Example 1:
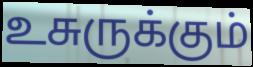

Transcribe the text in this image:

உசுருக்கும்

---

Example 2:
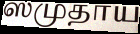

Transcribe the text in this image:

ஸமுதாய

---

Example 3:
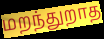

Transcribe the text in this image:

மறந்துறாத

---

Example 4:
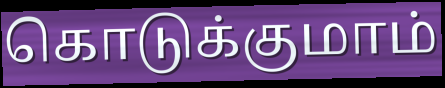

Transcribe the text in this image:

கொடுக்குமாம்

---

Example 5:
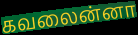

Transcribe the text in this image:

கவலைன்னா